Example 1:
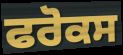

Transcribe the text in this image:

ਫਰੋਕਸ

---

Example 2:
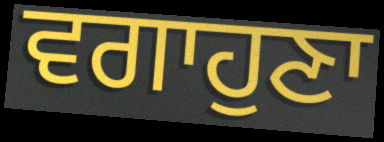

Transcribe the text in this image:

ਵਗਾਹੁਣਾ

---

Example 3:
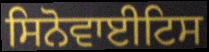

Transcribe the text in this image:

ਸਿਨੋਵਾਈਟਿਸ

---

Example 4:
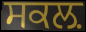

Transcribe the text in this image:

ਸਕਲ਼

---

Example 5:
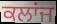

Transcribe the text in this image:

ਕਲਾਂਜ